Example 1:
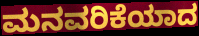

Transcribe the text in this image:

ಮನವರಿಕೆಯಾದ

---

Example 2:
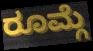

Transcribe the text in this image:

ರೂಮ್ಗೆ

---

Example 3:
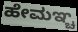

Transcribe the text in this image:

ಹೇಮಞ್ಚ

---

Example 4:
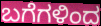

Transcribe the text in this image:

ಬಗೆಗಳಿಂದ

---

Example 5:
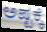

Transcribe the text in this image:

ಅಷ್ಟಕ್ಕೆ